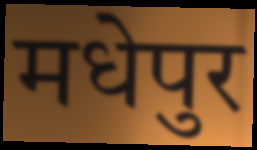
मधेपुर